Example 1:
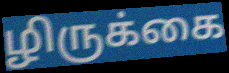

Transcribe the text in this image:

ழிருக்கை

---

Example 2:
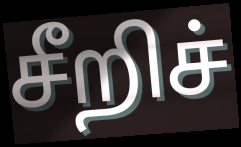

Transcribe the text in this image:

சீறிச்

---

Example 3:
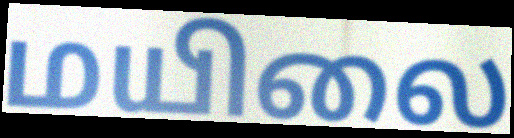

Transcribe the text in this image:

மயிலை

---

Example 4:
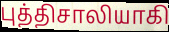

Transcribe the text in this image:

புத்திசாலியாகி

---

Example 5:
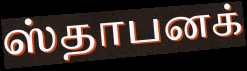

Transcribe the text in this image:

ஸ்தாபனக்